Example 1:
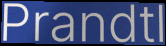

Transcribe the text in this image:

Prandtl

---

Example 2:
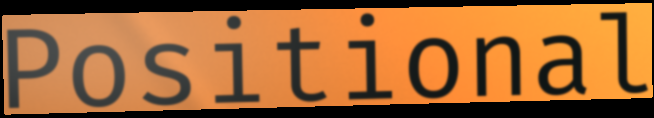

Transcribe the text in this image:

Positional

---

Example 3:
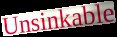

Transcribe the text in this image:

Unsinkable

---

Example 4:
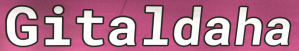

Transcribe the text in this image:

Gitaldaha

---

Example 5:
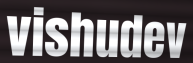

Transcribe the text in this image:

vishudev